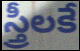
స్త్రీలకే